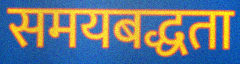
समयबद्धता